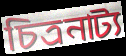
চিত্রনাট্য